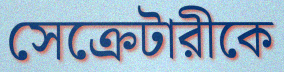
সেক্রেটারীকে